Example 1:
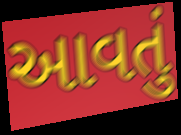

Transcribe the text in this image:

આવતું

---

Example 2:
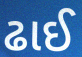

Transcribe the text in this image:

ઢાઈ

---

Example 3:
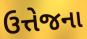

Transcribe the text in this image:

ઉત્તેજના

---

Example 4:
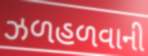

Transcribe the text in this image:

ઝળહળવાની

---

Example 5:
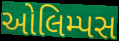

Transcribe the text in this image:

ઓલિમ્પસ